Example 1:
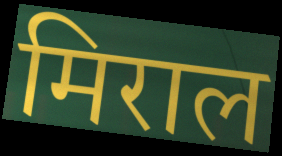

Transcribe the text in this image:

मिराल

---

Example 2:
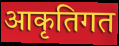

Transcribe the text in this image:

आकृतिगत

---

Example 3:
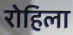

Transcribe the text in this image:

रोहिला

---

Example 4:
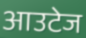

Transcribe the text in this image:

आउटेज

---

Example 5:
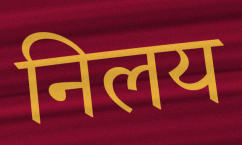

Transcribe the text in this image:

निलय